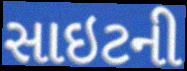
સાઇટની